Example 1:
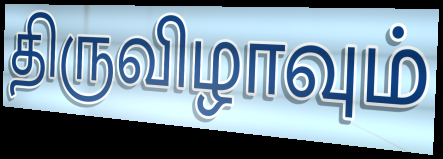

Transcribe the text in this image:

திருவிழாவும்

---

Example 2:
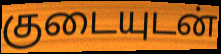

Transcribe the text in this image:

குடையுடன்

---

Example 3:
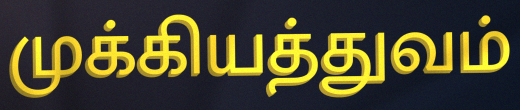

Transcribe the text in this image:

முக்கியத்துவம்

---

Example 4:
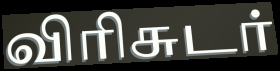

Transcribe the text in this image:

விரிசுடர்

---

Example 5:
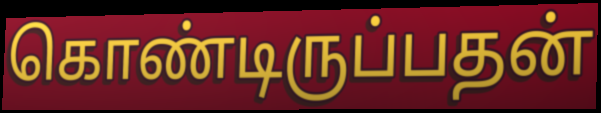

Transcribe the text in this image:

கொண்டிருப்பதன்